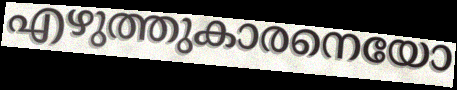
എഴുത്തുകാരനെയോ